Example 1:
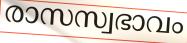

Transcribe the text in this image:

രാസസ്വഭാവം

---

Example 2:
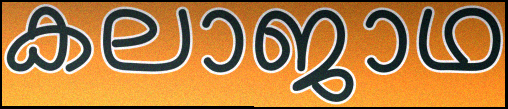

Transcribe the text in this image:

കലാജാഥ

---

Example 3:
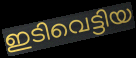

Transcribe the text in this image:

ഇടിവെട്ടിയ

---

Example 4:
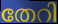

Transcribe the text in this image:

തേറി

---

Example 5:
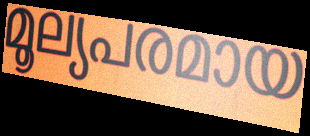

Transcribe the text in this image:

മൂല്യപരമായ